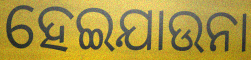
ହେଇଯାଉନା